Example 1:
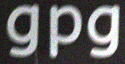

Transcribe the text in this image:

gpg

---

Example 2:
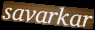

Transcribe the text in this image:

savarkar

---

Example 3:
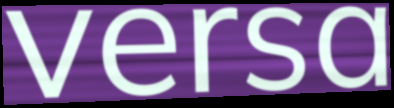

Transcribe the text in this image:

versa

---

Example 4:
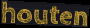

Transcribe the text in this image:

houten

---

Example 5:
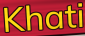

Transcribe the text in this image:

Khati